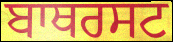
ਬਾਥਰਸਟ